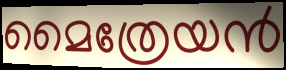
മൈത്രേയൻ